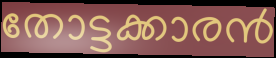
തോട്ടക്കാരൻ